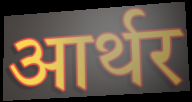
आर्थर